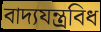
বাদ্যযন্ত্ৰবিধ